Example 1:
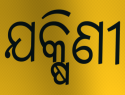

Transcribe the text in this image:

ଯକ୍ଷିଣୀ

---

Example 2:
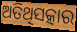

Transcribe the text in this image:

ଅତିଥିସତ୍କାର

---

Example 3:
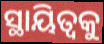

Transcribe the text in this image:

ସ୍ଥାୟିତ୍ୱକୁ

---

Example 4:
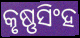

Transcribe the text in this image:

କୃଷ୍ଣସିଂହ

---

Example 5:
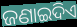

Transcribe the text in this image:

ଜଣାଇଦିଏ